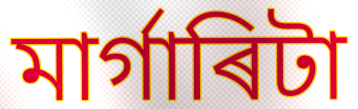
মাৰ্গাৰিটা